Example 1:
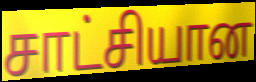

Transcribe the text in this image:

சாட்சியான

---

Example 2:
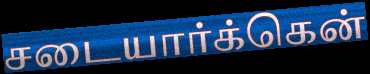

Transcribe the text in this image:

சடையார்க்கென்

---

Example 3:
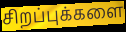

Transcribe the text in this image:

சிறப்புக்களை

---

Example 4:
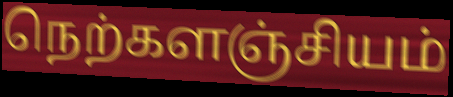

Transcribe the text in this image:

நெற்களஞ்சியம்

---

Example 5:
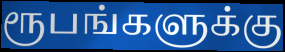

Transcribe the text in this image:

ரூபங்களுக்கு